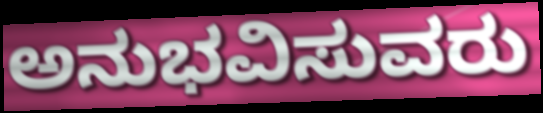
ಅನುಭವಿಸುವರು